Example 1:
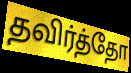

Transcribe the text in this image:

தவிர்த்தோ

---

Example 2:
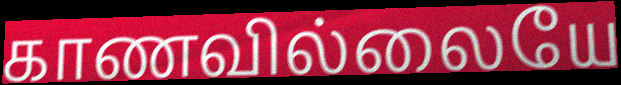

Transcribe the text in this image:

காணவில்லையே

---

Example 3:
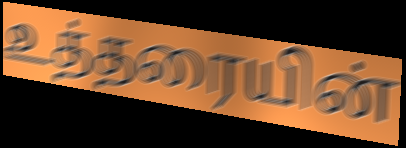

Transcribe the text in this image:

உத்தரையின்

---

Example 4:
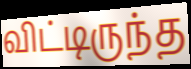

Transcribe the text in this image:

விட்டிருந்த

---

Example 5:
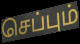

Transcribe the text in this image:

செப்பும்